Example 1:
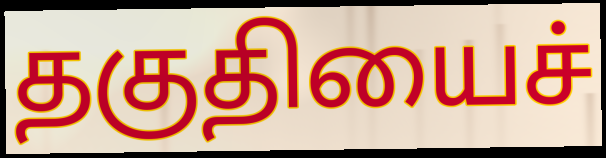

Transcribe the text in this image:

தகுதியைச்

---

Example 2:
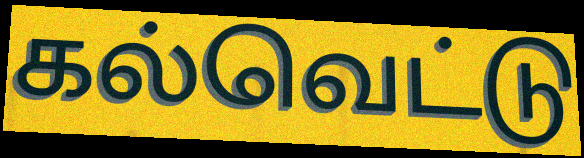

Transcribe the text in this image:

கல்வெட்டு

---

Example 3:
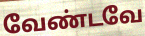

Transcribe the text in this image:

வேண்டவே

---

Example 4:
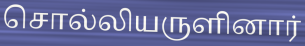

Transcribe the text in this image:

சொல்லியருளினார்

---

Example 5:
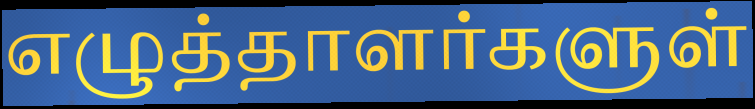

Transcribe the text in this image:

எழுத்தாளர்களுள்